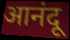
आनंदू